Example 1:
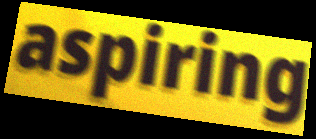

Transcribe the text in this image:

aspiring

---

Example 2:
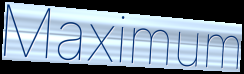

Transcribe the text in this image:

Maximum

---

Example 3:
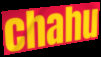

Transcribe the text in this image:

chahu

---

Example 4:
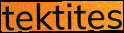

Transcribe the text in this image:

tektites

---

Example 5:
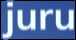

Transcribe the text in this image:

juru